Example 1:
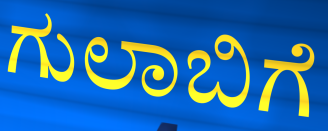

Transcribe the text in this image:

ಗುಲಾಬಿಗೆ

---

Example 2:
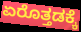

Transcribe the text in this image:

ಏರೊತ್ತಡಕ್ಕೆ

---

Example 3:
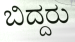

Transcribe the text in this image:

ಬಿದ್ದರು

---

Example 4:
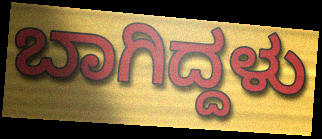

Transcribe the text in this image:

ಬಾಗಿದ್ದಳು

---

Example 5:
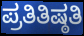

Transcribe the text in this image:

ಪ್ರತಿತಿಷ್ಠತಿ